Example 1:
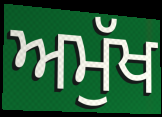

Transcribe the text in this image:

ਅਮੁੱਖ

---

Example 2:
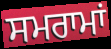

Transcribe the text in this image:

ਸਮਰਾਮਾਂ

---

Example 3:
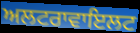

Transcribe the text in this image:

ਅਲਟਰਾਵਾਇਲਟ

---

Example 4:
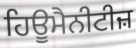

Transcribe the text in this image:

ਹਿਊਮੈਨੀਟੀਜ਼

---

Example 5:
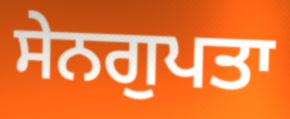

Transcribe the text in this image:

ਸੇਨਗੁਪਤਾ